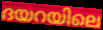
ദയറയിലെ